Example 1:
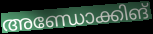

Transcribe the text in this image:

അണ്ഡോക്കിങ്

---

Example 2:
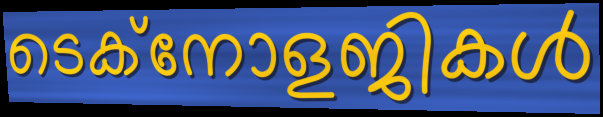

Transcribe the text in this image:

ടെക്നോളജികൾ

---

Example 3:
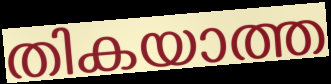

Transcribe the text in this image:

തികയാത്ത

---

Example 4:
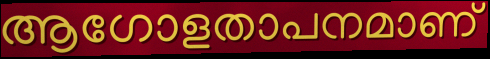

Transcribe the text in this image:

ആഗോളതാപനമാണ്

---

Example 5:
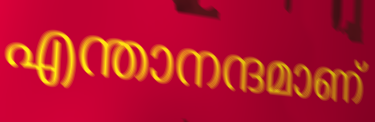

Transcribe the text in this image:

എന്താനന്ദമാണ്